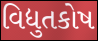
વિદ્યુતકોષ